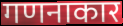
गणनाकार